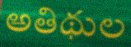
అతిథుల